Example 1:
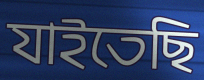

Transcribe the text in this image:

যাইতেছি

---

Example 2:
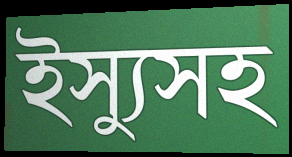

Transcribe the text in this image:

ইস্যুসহ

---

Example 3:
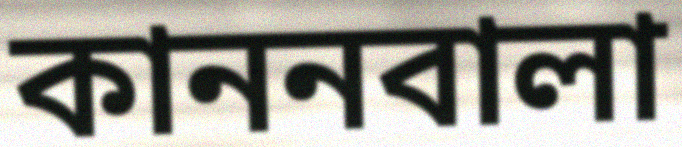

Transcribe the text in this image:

কাননবালা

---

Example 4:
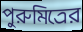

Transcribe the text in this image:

পুরুমিত্রের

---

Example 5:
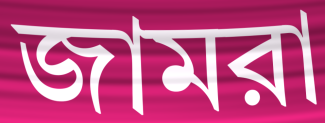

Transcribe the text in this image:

জামরা